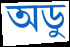
অডু